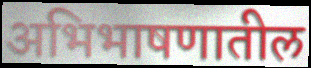
अभिभाषणातील